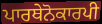
ਪਾਰਥੇਨੋਕਾਰਪੀ